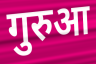
गुरुआ